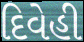
દિવેહી